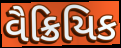
વૈક્રિયિક